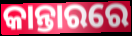
କାନ୍ତାରରେ